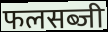
फलसब्जी